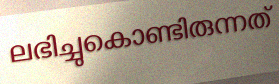
ലഭിച്ചുകൊണ്ടിരുന്നത്